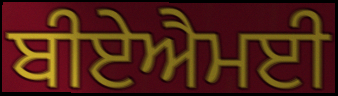
ਬੀਏਐਮਈ